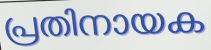
പ്രതിനായക